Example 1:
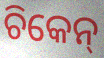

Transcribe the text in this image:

ଚିକେନ୍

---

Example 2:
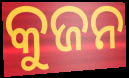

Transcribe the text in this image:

କୁଜନ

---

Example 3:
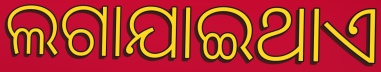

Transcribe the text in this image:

ଲଗାଯାଇଥାଏ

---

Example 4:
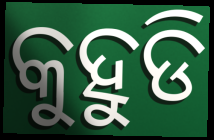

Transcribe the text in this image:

କୁହୁଡି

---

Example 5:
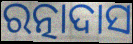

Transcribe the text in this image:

ରତ୍ନାଦାସ